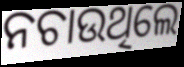
ନଚାଉଥିଲେ